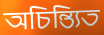
অচিন্ত্যিত